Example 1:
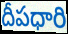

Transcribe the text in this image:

దీపధారి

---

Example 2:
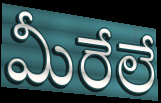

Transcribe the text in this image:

మీరేలే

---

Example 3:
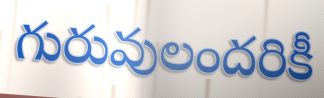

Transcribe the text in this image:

గురువులందరికీ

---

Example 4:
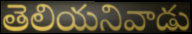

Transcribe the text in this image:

తెలియనివాడు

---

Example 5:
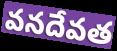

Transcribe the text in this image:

వనదేవత